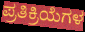
ಪ್ರತಿಕ್ರಿಯೆಗಳ